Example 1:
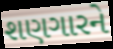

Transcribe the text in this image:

શણગારને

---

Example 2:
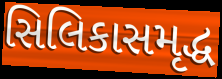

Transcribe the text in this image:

સિલિકાસમૃદ્ધ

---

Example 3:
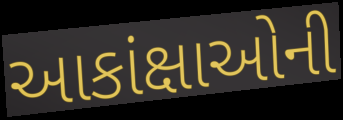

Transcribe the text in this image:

આકાંક્ષાઓની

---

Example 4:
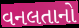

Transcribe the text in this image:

વનલતાનો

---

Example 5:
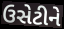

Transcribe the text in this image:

ઉસેટીને